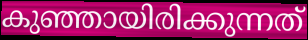
കുഞ്ഞായിരിക്കുന്നത്